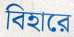
বিহারে